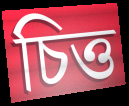
চিত্ত